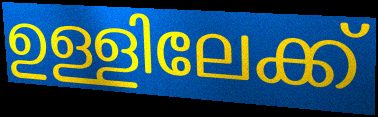
ഉള്ളിലേക്ക്